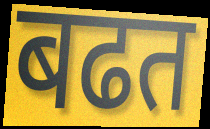
बढत